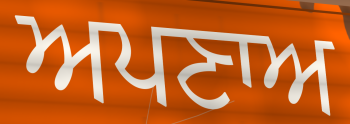
ਅਪਣਾਅ